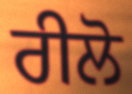
ਰੀਲੋ